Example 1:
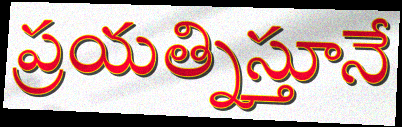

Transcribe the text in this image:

ప్రయత్నిస్తూనే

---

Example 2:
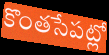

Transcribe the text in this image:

కొంతసేపట్లో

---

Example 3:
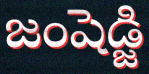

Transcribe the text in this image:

జంషెడ్జి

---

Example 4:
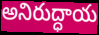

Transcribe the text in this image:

అనిరుద్ధాయ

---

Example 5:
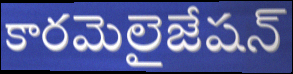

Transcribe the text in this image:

కారమెలైజేషన్